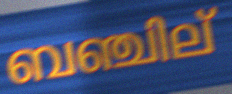
ബഞ്ചില്